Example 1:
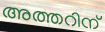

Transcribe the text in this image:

അത്തറിന്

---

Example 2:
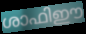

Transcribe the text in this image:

ശാഫിഈ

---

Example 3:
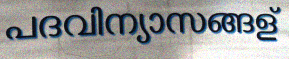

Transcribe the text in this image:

പദവിന്യാസങ്ങള്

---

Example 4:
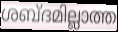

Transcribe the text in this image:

ശബ്ദമില്ലാത്ത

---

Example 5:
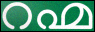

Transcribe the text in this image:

റഹ്മ